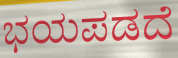
ಭಯಪಡದೆ